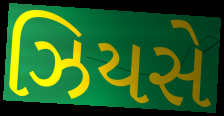
ઝિયસે